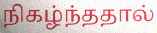
நிகழ்ந்ததால்